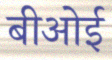
बीओई